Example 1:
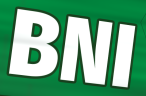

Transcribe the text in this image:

BNI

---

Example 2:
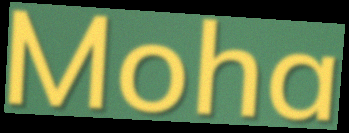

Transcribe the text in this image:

Moha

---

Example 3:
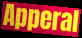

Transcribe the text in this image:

Apperal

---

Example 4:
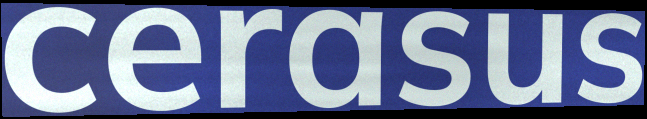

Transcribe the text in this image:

cerasus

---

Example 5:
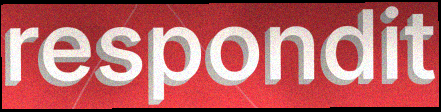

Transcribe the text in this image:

respondit